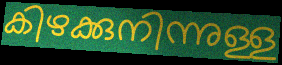
കിഴക്കുനിന്നുള്ള